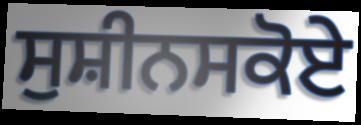
ਸੁਸ਼ੀਨਸਕੋਏ